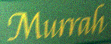
Murrah